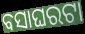
ବସାଘରଟା